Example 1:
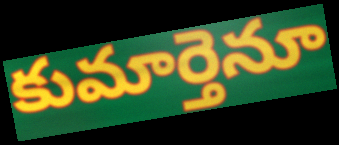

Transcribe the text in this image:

కుమార్తెనూ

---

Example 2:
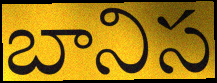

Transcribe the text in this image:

బానిస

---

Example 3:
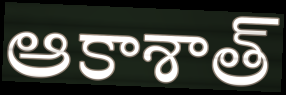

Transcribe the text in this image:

ఆకాశాత్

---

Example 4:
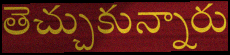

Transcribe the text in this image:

తెచ్చుకున్నారు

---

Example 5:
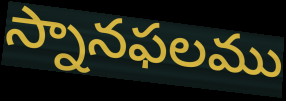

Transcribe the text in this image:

స్నానఫలము